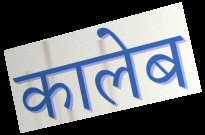
कालेब